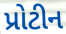
પ્રોટીન